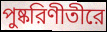
পুষ্করিণীতীরে